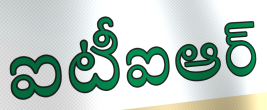
ఐటీఐఆర్